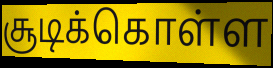
சூடிக்கொள்ள